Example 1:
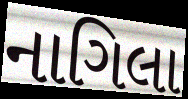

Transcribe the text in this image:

નાગિલા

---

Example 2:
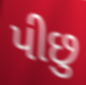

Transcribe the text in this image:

પીછુ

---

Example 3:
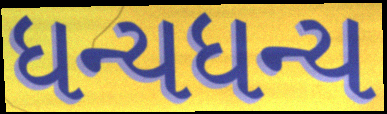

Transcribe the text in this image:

ધન્યધન્ય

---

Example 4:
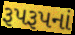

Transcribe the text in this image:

રૂપરૂપનાં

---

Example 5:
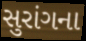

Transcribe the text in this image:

સુરાંગના